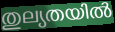
തുല്യതയിൽ